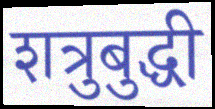
शत्रुबुद्धी